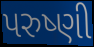
પરુષ્ણી